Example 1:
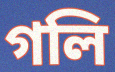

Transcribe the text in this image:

গলি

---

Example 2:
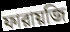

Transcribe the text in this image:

ফারায়জি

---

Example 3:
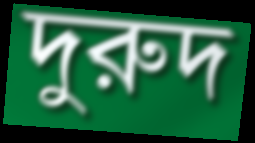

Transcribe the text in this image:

দুরুদ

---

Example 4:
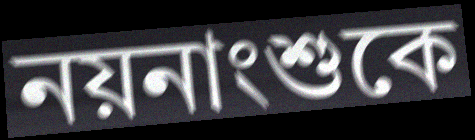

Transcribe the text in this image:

নয়নাংশুকে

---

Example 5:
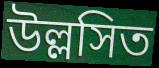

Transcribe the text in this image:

উল্লসিত